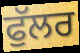
ਫੁੱਲਰ